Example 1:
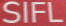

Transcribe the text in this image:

SIFL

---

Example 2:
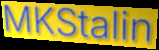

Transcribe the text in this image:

MKStalin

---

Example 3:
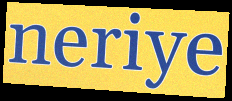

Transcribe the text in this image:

neriye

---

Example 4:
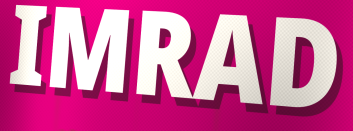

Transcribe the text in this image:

IMRAD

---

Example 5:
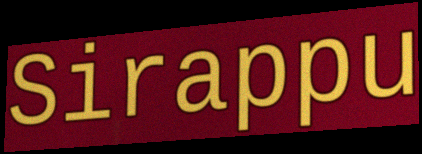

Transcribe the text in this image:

Sirappu